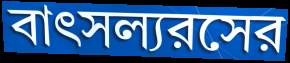
বাৎসল্যরসের